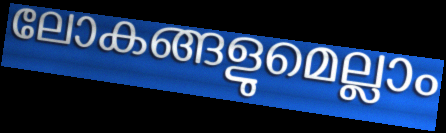
ലോകങ്ങളുമെല്ലാം